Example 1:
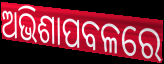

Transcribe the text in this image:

ଅଭିଶାପବଳରେ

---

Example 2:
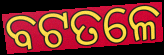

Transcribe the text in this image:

ବଟତଳେ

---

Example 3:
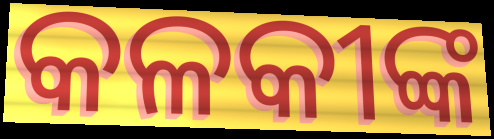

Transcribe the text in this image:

କଳକୀଙ୍କ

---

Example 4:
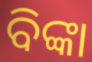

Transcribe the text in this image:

ବିଙ୍କା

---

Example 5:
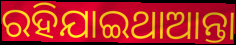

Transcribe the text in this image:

ରହିଯାଇଥାଆନ୍ତା